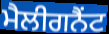
ਮੈਲੀਗਨੈਂਟ